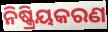
ନିଷ୍କ୍ରିୟକରଣ